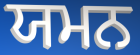
ਯਮਨ